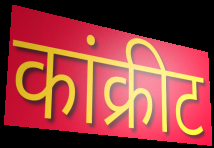
कांक्रीट